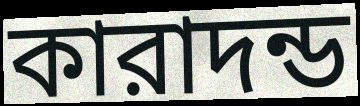
কারাদন্ড